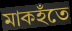
মাকহঁতে